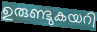
ഉരുണ്ടുകയറി